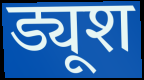
ड्यूश